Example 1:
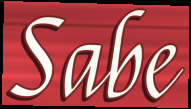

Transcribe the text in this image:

Sabe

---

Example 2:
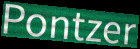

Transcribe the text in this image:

Pontzer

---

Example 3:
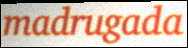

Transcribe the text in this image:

madrugada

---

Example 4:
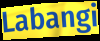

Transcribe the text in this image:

Labangi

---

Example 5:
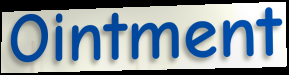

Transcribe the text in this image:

Ointment